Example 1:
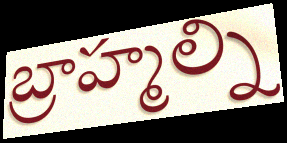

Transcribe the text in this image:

బ్రాహ్మల్ని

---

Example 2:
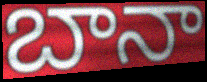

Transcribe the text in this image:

బానా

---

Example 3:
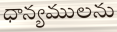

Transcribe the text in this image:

ధాన్యములను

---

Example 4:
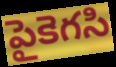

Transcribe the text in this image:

పైకెగసి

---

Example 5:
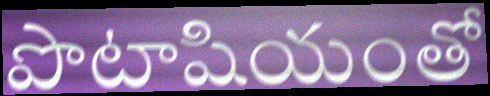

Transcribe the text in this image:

పొటాషియంతో